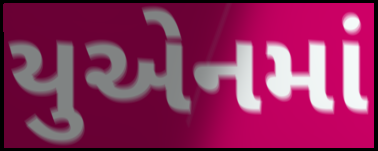
યુએનમાં